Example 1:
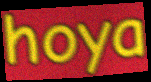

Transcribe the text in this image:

hoya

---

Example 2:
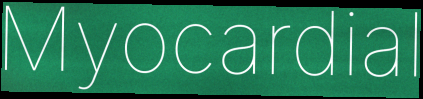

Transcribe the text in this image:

Myocardial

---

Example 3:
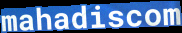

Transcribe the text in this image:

mahadiscom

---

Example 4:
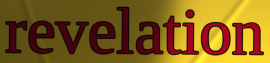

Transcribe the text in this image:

revelation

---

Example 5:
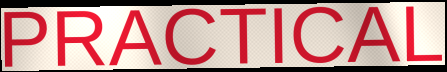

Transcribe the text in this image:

PRACTICAL